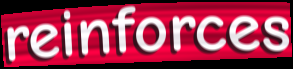
reinforces